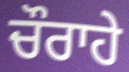
ਚੌਰਾਹੇ